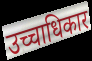
उच्चाधिकार